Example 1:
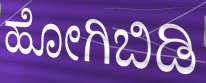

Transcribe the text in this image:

ಹೋಗಿಬಿಡಿ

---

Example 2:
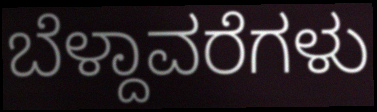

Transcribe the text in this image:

ಬೆಳ್ದಾವರೆಗಳು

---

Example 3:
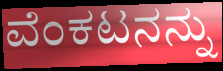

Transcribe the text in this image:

ವೆಂಕಟನನ್ನು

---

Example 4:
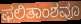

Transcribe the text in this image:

ಫಲಿತಾಂಶವೂ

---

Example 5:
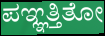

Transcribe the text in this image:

ಪಞ್ಞತ್ತಿತೋ